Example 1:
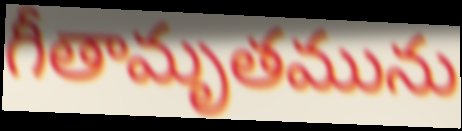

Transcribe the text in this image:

గీతామృతమును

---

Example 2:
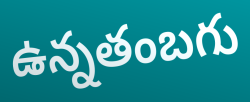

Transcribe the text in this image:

ఉన్నతంబగు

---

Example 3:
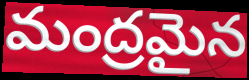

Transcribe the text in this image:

మంద్రమైన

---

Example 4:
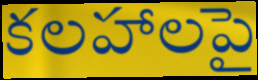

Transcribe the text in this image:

కలహాలపై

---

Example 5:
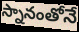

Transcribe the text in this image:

స్నానంతోనే